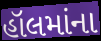
હૉલમાંના